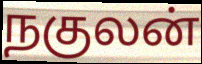
நகுலன்